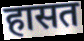
हासत